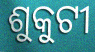
ଶୁକୁଟୀ